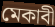
মেকাবী